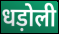
धड़ोली